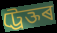
ট্ৰেক্তৰ